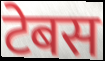
टेबस